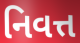
નિવત્ત